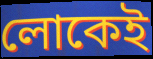
লোকেই